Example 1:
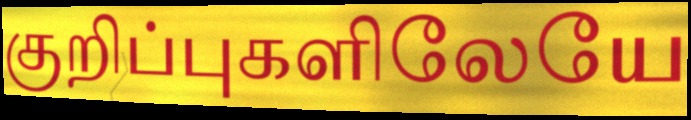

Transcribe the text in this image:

குறிப்புகளிலேயே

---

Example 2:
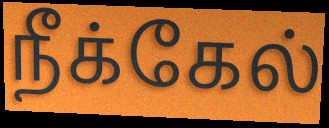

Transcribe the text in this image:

நீக்கேல்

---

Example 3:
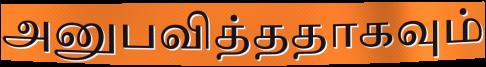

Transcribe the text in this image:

அனுபவித்ததாகவும்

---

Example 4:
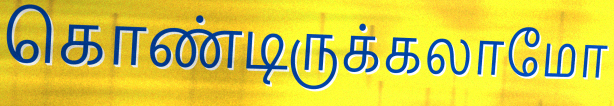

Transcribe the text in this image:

கொண்டிருக்கலாமோ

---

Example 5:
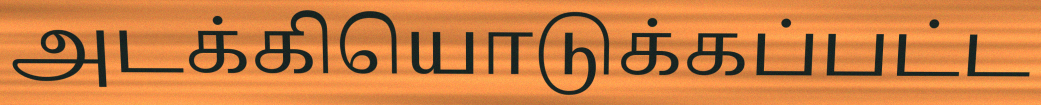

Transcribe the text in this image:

அடக்கியொடுக்கப்பட்ட